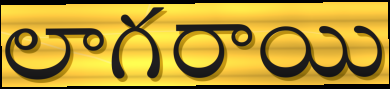
లాగరాయి